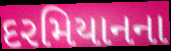
દરમિયાનના